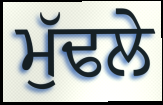
ਮੁੱਢਲੇ